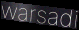
warsadi